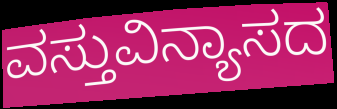
ವಸ್ತುವಿನ್ಯಾಸದ